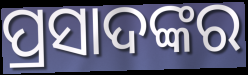
ପ୍ରସାଦଙ୍କର